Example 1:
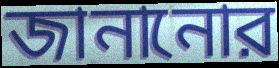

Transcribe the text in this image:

জানানোর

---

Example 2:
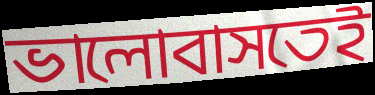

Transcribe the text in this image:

ভালোবাসতেই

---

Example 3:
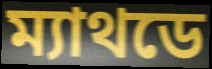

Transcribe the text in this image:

ম্যাথডে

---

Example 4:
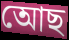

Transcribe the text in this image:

আেছ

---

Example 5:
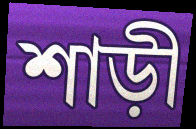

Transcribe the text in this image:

শাড়ী